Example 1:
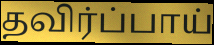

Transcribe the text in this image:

தவிர்ப்பாய்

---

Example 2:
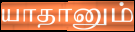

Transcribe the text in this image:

யாதானும்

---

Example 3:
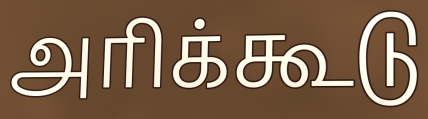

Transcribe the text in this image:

அரிக்கூடு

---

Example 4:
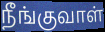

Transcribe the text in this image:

நீங்குவாள்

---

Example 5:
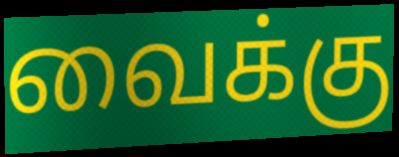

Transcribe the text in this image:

வைக்கு